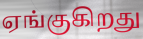
ஏங்குகிறது